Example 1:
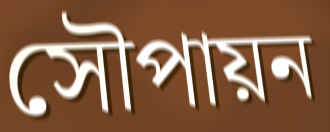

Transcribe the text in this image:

সৌপায়ন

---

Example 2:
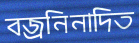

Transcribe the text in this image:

বজ্রনিনাদিত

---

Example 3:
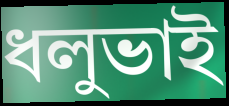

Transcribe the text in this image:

ধলুভাই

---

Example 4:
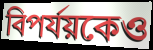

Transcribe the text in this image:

বিপর্যয়কেও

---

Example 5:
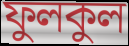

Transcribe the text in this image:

ফুলকুল